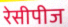
रेसीपीज